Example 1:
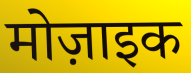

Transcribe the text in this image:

मोज़ाइक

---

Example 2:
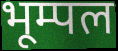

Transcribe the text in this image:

भूम्पल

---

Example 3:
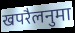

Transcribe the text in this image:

खपरैलनुमा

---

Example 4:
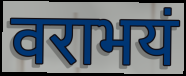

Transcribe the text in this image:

वराभयं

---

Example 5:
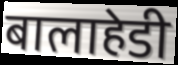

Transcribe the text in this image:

बालाहेडी